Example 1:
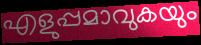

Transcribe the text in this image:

എളുപ്പമാവുകയും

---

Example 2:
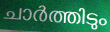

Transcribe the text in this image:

ചാർത്തിടും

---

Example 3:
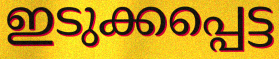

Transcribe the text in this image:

ഇടുക്കപ്പെട്ട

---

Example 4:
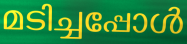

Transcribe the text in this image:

മടിച്ചപ്പോൾ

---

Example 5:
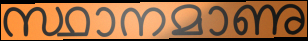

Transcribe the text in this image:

സ്ഥാനമാണു